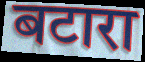
बटारा